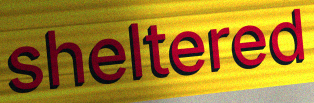
sheltered